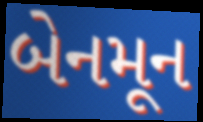
બેનમૂન